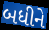
બધીને